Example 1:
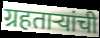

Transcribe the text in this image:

ग्रहताऱ्यांची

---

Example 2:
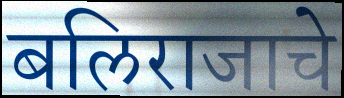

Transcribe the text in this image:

बलिराजाचे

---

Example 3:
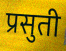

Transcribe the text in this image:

प्रसुती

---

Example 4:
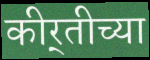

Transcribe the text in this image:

कीर्तीच्या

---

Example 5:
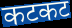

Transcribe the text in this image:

कटकट